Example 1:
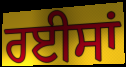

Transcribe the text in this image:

ਰਈਸਾਂ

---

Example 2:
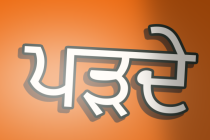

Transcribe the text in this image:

ਪੜਦੇ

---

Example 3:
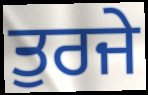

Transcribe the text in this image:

ਤੁਰਜੇ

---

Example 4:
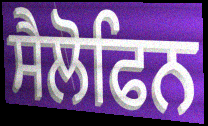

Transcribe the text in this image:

ਸੈਲੋਫਿਨ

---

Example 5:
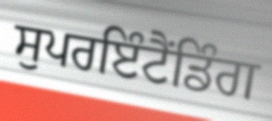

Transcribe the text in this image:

ਸੁਪਰਇੰਟੈਂਡਿੰਗ